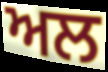
ਅਲ